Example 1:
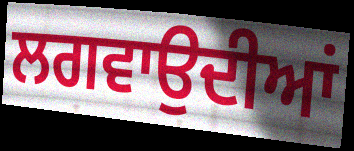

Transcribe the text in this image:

ਲਗਵਾਉਦੀਆਂ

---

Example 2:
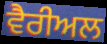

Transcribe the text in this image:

ਵੈਰੀਅਲ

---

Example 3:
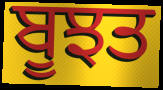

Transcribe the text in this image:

ਬੂਝਤ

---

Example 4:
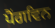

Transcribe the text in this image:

ਪੈਂਗਵਿਨ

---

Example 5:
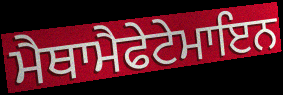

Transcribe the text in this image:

ਮੈਥਾਮੈਫੇਟੇਮਾਇਨ